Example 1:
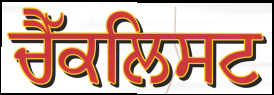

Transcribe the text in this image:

ਚੈੱਕਲਿਸਟ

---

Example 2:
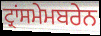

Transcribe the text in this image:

ਟ੍ਰਾਂਸਮੇਮਬਰੇਨ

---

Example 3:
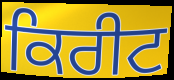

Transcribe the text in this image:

ਕਿਰੀਟ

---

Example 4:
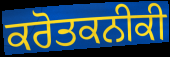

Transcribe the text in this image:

ਕਰੋਤਕਨੀਕੀ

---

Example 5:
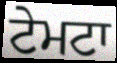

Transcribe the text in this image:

ਟੇਮਟਾ